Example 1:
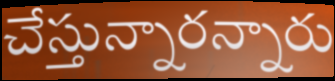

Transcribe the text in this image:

చేస్తున్నారన్నారు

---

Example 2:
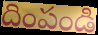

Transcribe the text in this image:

దింపండి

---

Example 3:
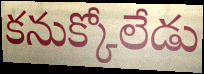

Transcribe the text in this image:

కనుక్కోలేడు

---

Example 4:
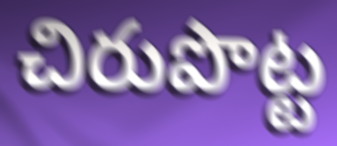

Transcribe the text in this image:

చిరుపొట్ట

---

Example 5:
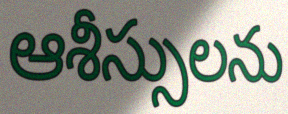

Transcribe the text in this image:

ఆశీస్సులను